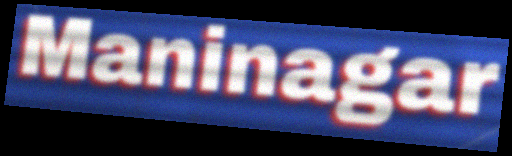
Maninagar